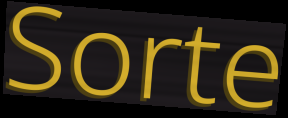
Sorte